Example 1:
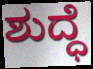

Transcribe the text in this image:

ಶುದ್ಧೆ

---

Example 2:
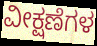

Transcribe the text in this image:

ವೀಕ್ಷಣೆಗಳ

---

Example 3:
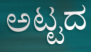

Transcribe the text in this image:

ಅಟ್ಟದ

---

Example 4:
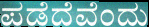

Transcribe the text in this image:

ಪಡೆದೆವೆಂದು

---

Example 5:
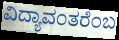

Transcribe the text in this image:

ವಿದ್ಯಾವಂತರೆಂಬ